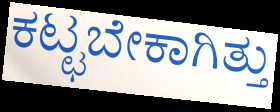
ಕಟ್ಟಬೇಕಾಗಿತ್ತು